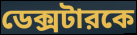
ডেক্সটারকে